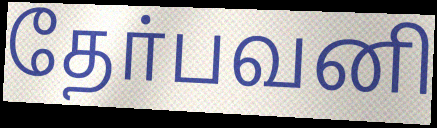
தேர்பவனி